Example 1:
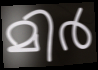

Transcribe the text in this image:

മിർ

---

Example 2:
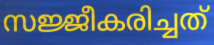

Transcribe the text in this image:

സജ്ജീകരിച്ചത്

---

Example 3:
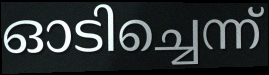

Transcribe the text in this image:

ഓടിച്ചെന്ന്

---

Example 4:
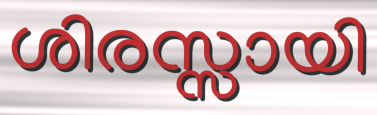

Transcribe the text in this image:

ശിരസ്സായി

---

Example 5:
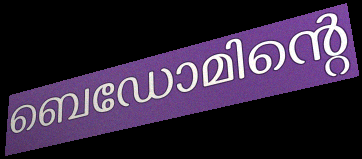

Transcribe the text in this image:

ബെഡോമിന്റെ